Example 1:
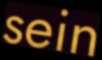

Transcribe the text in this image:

sein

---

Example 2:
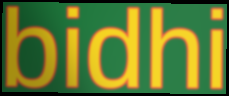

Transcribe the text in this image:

bidhi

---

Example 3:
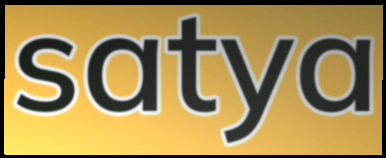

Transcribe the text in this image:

satya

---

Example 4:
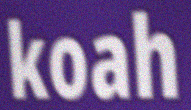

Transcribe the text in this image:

koah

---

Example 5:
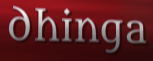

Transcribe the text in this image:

dhinga